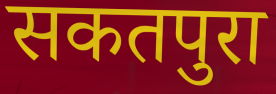
सकतपुरा